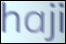
haji